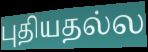
புதியதல்ல